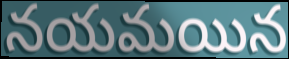
నయమయిన